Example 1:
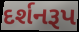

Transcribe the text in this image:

દર્શનરૂપ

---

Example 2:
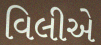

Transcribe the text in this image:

વિલીએ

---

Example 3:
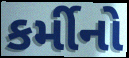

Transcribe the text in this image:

કર્મીનો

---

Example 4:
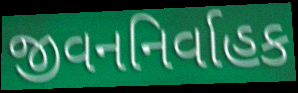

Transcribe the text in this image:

જીવનનિર્વાહક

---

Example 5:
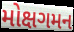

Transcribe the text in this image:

મોક્ષગમન